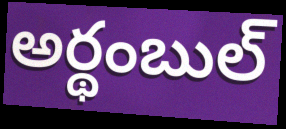
అర్థంబుల్